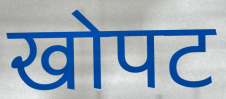
खोपट